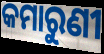
କମାରୁଣୀ